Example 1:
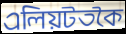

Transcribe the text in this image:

এলিয়টতকৈ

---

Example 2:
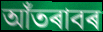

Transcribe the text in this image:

আঁতৰাবৰ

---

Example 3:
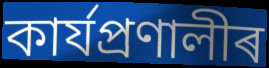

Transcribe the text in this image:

কাৰ্যপ্ৰণালীৰ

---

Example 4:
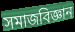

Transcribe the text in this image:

সমাজবিজ্ঞান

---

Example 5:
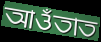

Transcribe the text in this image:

আওঁতাত